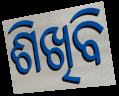
ଶିଖିବି